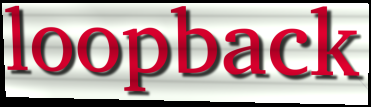
loopback